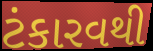
ટંકારવથી